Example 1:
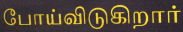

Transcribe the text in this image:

போய்விடுகிறார்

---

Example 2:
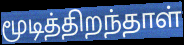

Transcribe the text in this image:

மூடித்திறந்தாள்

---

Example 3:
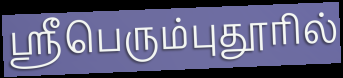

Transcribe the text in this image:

ஸ்ரீபெரும்புதூரில்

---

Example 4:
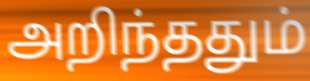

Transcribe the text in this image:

அறிந்ததும்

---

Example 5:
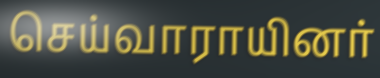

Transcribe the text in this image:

செய்வாராயினர்